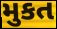
મુકત